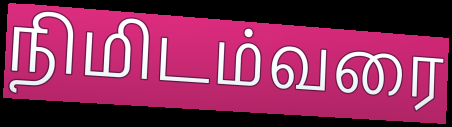
நிமிடம்வரை